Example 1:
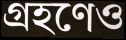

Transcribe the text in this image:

গ্রহণেও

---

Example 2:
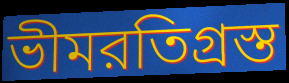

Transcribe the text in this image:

ভীমরতিগ্রস্ত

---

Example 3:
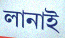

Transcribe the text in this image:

লানাই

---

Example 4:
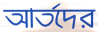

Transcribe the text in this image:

আর্তদের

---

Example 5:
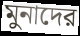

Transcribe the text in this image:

মুনাদের